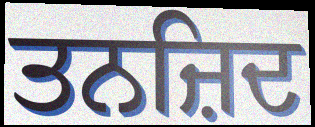
ਤਨਜ਼ਿਦ